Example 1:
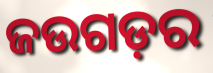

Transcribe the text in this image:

ଜଉଗଡ଼ର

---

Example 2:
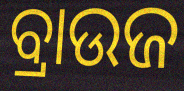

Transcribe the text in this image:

ବ୍ରାଉଜ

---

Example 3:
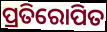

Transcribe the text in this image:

ପ୍ରତିରୋପିତ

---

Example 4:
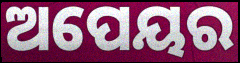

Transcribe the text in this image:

ଅପେୟର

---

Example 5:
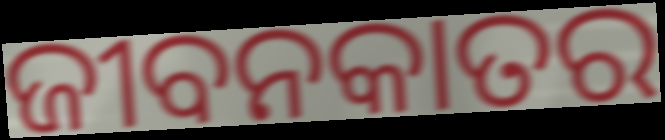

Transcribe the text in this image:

ଜୀବନକାତର